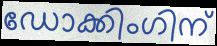
ഡോക്കിംഗിന്